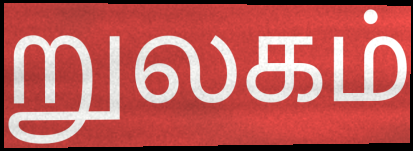
றுலகம்